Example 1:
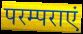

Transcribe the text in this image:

परम्पराएं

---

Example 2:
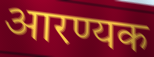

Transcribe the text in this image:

आरण्यक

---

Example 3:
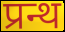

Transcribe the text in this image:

प्रन्थ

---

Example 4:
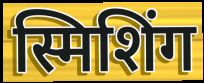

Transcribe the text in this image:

स्मिशिंग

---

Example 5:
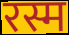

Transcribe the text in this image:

रस्म